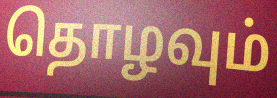
தொழவும்